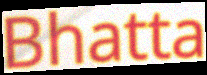
Bhatta